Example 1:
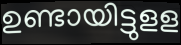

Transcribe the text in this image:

ഉണ്ടായിട്ടുളള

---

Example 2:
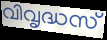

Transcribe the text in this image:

വിവൃദ്ധസ്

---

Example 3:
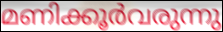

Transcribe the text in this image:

മണിക്കൂർവരുന്നു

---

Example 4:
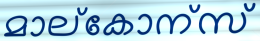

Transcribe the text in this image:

മാല്കോന്സ്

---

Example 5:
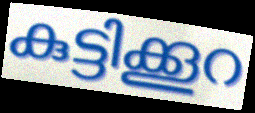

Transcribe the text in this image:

കുട്ടിക്കൂറ